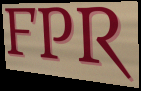
FPR